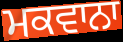
ਮਕਵਾਨਾ